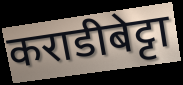
कराडीबेट्टा